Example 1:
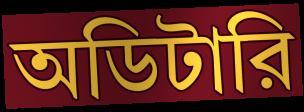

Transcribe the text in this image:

অডিটারি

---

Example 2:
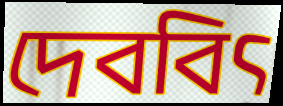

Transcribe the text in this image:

দেববিৎ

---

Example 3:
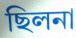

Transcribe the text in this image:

ছিলনা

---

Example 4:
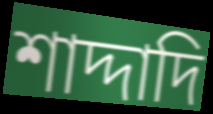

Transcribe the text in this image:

শাদ্দাদি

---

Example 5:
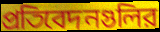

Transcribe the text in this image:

প্রতিবেদনগুলির